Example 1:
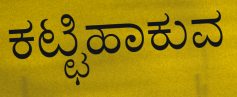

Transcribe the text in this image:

ಕಟ್ಟಿಹಾಕುವ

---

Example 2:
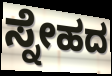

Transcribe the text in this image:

ಸ್ನೇಹದ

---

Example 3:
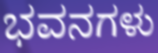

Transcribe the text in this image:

ಭವನಗಳು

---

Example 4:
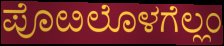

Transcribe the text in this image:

ಪೊೞಲೊಳಗೆಲ್ಲಂ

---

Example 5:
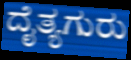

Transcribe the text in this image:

ದೈತ್ಯಗುರು